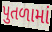
પુતળામાં